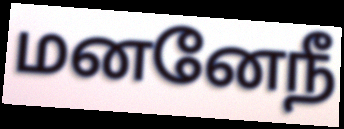
மனனேநீ